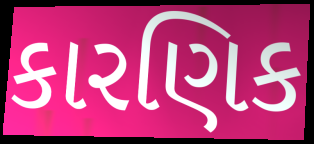
કારણિક